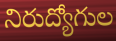
నిరుద్యోగుల